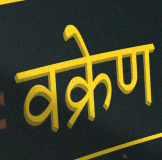
वक्रेण